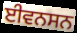
ਈਵਨਸਨ